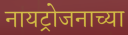
नायट्रोजनाच्या